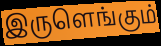
இருளெங்கும்